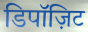
डिपॉज़िट